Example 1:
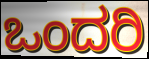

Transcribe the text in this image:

ಒಂದರಿ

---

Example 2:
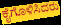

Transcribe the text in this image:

ಕೈಗೊಳಿಸಿದರು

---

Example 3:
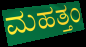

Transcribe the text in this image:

ಮಹತ್ತಂ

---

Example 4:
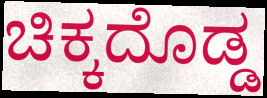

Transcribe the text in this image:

ಚಿಕ್ಕದೊಡ್ಡ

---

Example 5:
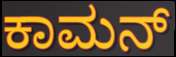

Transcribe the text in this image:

ಕಾಮನ್